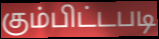
கும்பிட்டபடி